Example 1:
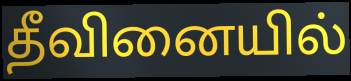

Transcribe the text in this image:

தீவினையில்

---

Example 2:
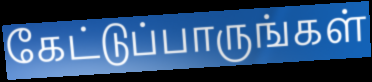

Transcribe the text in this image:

கேட்டுப்பாருங்கள்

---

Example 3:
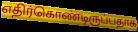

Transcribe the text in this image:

எதிர்கொண்டிருப்பதாக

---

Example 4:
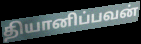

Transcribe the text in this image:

தியானிப்பவன்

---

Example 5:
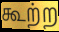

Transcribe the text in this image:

கூற்ற